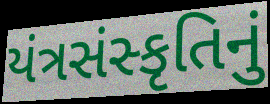
યંત્રસંસ્કૃતિનું